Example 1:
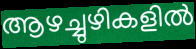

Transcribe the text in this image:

ആഴച്ചുഴികളിൽ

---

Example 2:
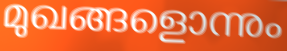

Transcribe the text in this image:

മുഖങ്ങളൊന്നും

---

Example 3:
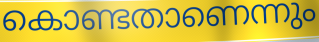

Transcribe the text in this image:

കൊണ്ടതാണെന്നും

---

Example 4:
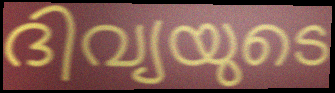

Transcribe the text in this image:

ദിവ്യയുടെ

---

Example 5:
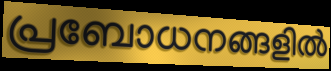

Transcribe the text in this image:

പ്രബോധനങ്ങളിൽ